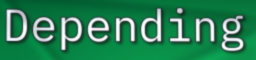
Depending